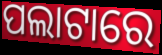
ପଲାଟାରେ